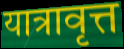
यात्रावृत्त